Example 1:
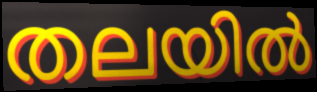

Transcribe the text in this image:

തലയിൽ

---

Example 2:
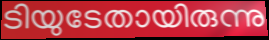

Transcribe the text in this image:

ടിയുടേതായിരുന്നു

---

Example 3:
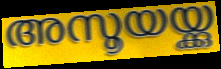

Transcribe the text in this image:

അസൂയയ്ക്കു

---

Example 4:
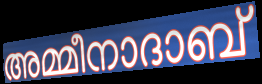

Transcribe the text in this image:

അമ്മീനാദാബ്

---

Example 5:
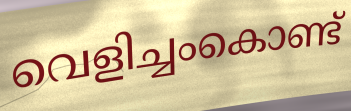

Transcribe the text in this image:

വെളിച്ചംകൊണ്ട്